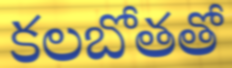
కలబోతతో